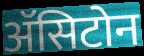
ॲसिटोन